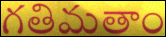
గతిమతాం